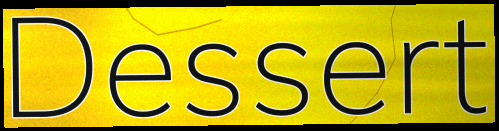
Dessert